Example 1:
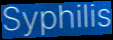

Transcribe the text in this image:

Syphilis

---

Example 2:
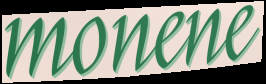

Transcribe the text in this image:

monene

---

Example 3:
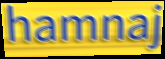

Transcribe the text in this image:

hamnaj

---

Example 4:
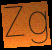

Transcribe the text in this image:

Zg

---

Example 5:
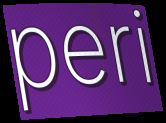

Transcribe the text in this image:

peri